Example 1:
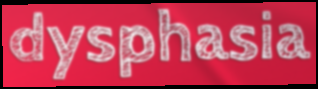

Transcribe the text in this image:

dysphasia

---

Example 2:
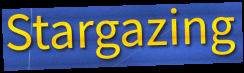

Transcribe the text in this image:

Stargazing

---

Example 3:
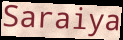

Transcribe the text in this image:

Saraiya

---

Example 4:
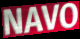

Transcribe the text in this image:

NAVO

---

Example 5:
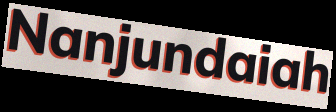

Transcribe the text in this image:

Nanjundaiah